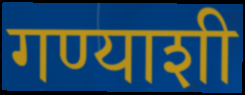
गण्याशी